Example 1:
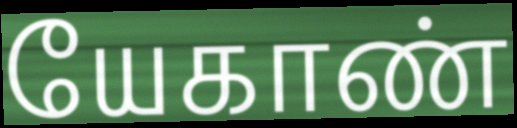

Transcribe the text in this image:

யேகாண்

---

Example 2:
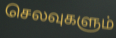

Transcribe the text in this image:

செலவுகளும்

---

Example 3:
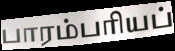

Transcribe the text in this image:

பாரம்பரியப்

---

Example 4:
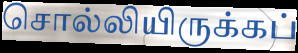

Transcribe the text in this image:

சொல்லியிருக்கப்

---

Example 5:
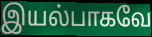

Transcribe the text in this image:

இயல்பாகவே